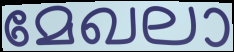
മേഖലാ